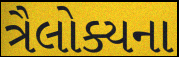
ત્રૈલોક્યના